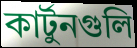
কার্টুনগুলি